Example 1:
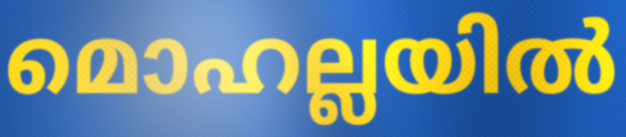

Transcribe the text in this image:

മൊഹല്ലയിൽ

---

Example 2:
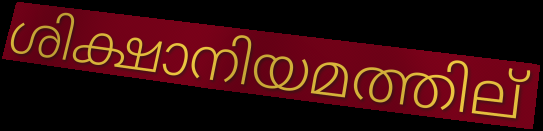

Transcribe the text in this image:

ശിക്ഷാനിയമത്തില്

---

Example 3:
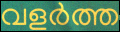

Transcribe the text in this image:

വളർത്ത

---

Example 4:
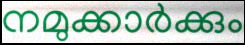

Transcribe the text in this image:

നമുക്കാർക്കും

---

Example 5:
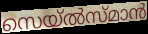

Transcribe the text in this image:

സെയ്ൽസ്മാൻ